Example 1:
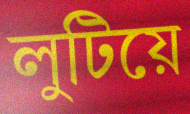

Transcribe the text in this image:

লুটিয়ে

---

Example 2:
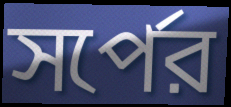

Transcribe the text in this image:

সর্পের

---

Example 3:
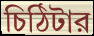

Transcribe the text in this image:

চিঠিটার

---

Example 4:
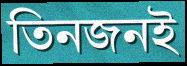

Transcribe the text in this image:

তিনজনই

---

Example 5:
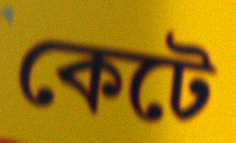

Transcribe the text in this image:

কেটে